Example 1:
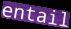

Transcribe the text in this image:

entail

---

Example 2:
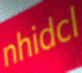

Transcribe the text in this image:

nhidcl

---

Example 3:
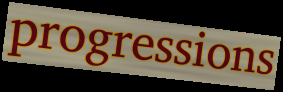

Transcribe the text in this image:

progressions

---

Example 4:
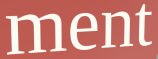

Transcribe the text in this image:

ment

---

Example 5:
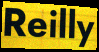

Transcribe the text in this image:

Reilly